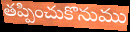
తప్పించుకొనుము